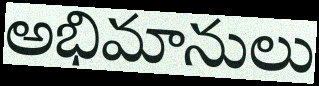
అభిమానులు